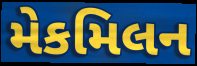
મેકમિલન